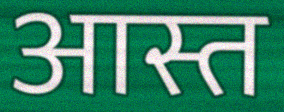
आस्त